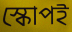
স্কোপই